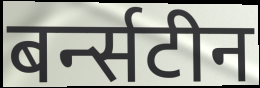
बर्न्सटीन